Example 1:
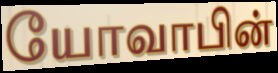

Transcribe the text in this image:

யோவாபின்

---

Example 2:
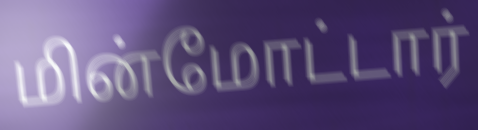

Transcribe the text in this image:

மின்மோட்டார்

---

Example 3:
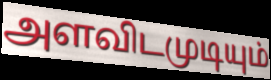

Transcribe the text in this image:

அளவிடமுடியும்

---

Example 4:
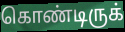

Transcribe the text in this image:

கொண்டிருக்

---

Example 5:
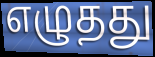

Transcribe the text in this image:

எழுதது